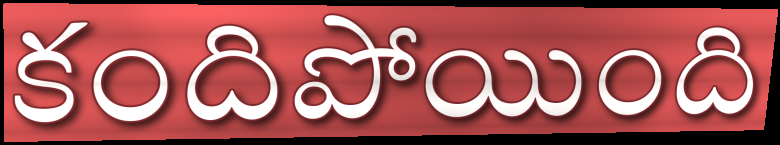
కందిపోయింది